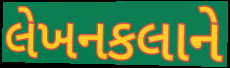
લેખનકલાને